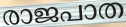
രാജപാത